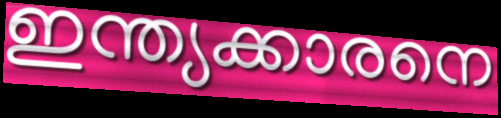
ഇന്ത്യക്കാരനെ